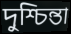
দুশ্চিন্তা